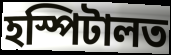
হস্পিটালত